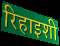
रिहाइशी